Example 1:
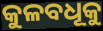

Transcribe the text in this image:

କୁଳବଧୂକୁ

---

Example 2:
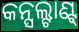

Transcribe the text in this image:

କନ୍ସଲ୍ଟାଣ୍ଟ୍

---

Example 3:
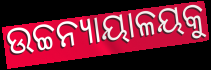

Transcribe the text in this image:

ଉଚ୍ଚନ୍ୟାୟାଳୟକୁ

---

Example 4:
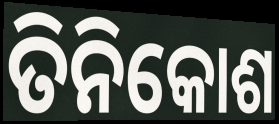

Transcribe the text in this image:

ତିନିକୋଶ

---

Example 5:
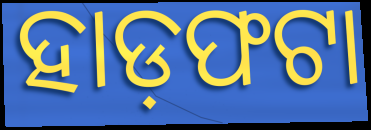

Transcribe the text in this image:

ହାଡ଼ଫଟା